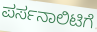
ಪರ್ಸನಾಲಿಟಿಗೆ